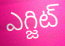
ఎగ్జిట్